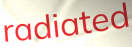
radiated